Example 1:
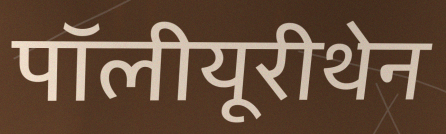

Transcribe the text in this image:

पॉलीयूरीथेन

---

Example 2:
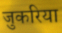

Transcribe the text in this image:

जुकरिया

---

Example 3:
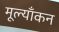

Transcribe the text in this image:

मूल्याँकन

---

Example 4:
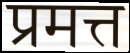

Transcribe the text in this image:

प्रमत्त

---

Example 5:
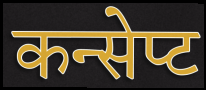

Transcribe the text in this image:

कन्सेप्ट